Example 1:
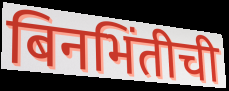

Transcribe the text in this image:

बिनभिंतीची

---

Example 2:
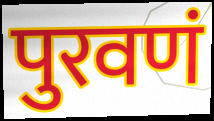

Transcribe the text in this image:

पुरवणं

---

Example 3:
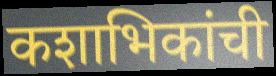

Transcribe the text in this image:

कशाभिकांची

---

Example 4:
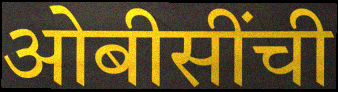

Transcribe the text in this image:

ओबीसींची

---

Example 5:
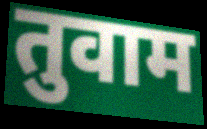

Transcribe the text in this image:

तुवाम